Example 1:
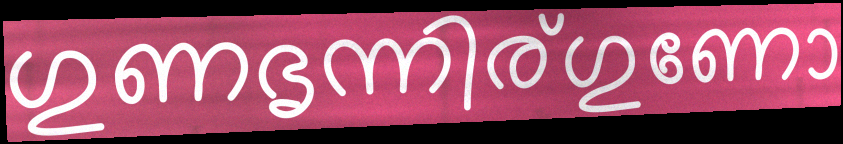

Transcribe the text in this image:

ഗുണഭൃന്നിര്ഗുണോ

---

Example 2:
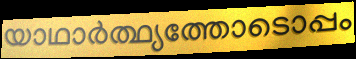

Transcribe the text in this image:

യാഥാർത്ഥ്യത്തോടൊപ്പം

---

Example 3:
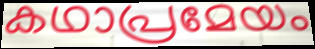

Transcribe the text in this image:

കഥാപ്രമേയം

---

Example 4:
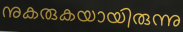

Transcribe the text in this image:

നുകരുകയായിരുന്നു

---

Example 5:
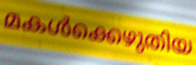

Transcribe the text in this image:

മകൾക്കെഴുതിയ